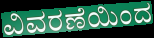
ವಿವರಣೆಯಿಂದ